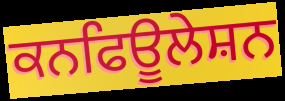
ਕਨਫਿਊਲੇਸ਼ਨ